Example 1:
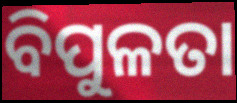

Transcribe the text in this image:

ବିପୁଳତା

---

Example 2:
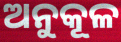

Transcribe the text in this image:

ଅନୁକୂଳ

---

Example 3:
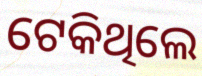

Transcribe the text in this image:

ଟେକିଥିଲେ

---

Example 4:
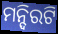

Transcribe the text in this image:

ମନ୍ଦିରଟି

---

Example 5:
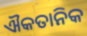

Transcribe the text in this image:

ଐକତାନିକ